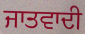
ਜਾਤਵਾਦੀ